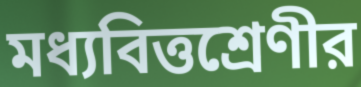
মধ্যবিত্তশ্রেণীর